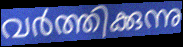
വർത്തിക്കുന്നു